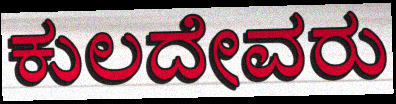
ಕುಲದೇವರು